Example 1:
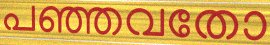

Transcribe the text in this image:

പഞ്ഞവതോ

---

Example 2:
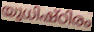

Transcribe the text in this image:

യുധിഷ്ഠിരം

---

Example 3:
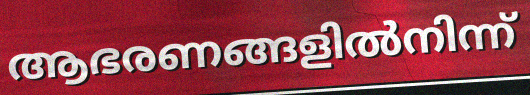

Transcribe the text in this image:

ആഭരണങ്ങളിൽനിന്ന്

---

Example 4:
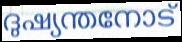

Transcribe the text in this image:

ദുഷ്യന്തനോട്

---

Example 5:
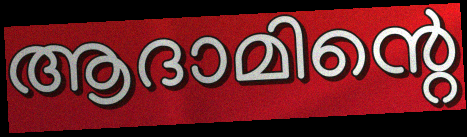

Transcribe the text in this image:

ആദാമിന്റെ